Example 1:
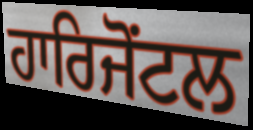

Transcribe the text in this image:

ਹਾਰਿਜੋਂਟਲ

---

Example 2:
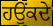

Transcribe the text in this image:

ਹਉਂਕਦੇ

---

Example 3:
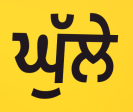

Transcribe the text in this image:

ਘੁੱਲੇ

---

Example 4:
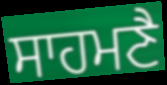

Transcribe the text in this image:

ਸਾਹਮਣੈ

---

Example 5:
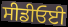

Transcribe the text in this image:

ਸੀਡੀਓਈ